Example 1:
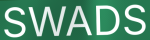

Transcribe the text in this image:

SWADS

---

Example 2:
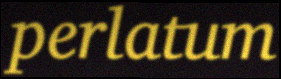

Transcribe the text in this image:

perlatum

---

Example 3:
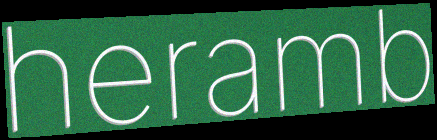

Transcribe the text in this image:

heramb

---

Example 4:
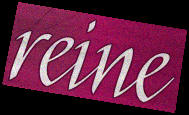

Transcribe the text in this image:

reine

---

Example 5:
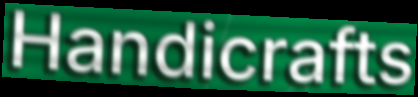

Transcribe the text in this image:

Handicrafts